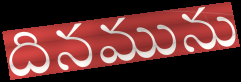
దినమును